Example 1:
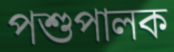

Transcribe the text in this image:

পশুপালক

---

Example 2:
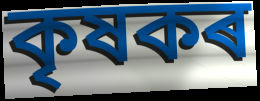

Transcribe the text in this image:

কৃষকৰ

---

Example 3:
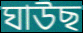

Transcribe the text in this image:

ঘাউছ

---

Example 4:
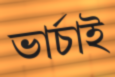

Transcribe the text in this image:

ভাৰ্চাই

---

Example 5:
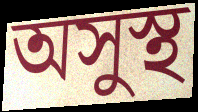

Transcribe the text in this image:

অসুস্থ